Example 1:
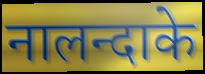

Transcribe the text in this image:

नालन्दाके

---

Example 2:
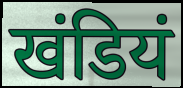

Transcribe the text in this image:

खंडियं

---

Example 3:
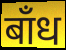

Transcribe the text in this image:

बाँध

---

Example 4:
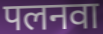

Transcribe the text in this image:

पलनवा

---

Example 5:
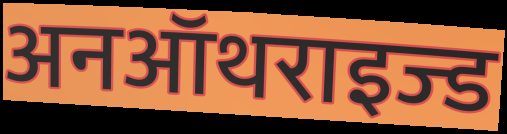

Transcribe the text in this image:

अनऑथराइज्ड